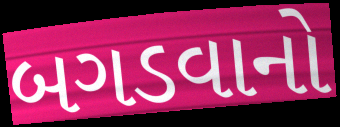
બગડવાનો